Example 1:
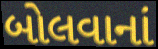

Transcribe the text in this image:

બોલવાનાં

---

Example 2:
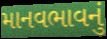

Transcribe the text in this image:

માનવભાવનું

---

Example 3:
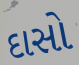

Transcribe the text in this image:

દાસો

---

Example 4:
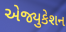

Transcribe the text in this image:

એજ્યુકેશન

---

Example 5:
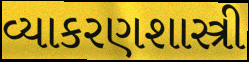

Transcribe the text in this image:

વ્યાકરણશાસ્ત્રી